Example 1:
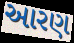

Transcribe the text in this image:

આરણ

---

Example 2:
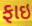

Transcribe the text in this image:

ફાઇ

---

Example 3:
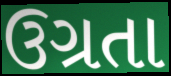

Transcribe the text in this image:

ઉગ્રતા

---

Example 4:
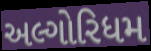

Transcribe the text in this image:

અલ્ગોરિધમ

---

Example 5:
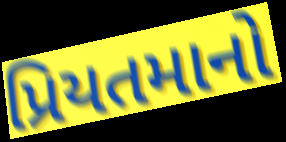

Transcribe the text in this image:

પ્રિયતમાનો